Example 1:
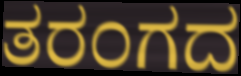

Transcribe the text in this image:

ತರಂಗದ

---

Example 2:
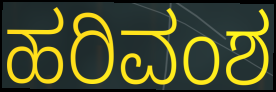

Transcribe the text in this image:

ಹರಿವಂಶ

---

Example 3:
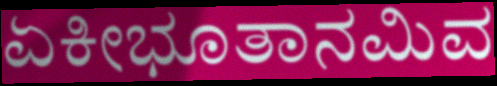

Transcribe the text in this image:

ಏಕೀಭೂತಾನಮಿವ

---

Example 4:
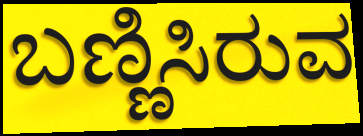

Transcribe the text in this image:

ಬಣ್ಣಿಸಿರುವ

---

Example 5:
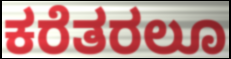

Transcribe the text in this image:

ಕರೆತರಲೂ